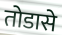
तोडासे